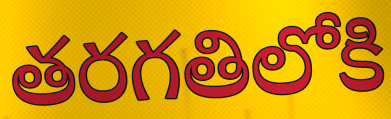
తరగతిలోకి